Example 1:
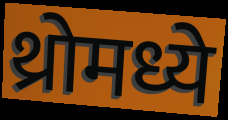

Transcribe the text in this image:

थ्रोमध्ये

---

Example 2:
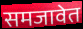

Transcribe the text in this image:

समजावेत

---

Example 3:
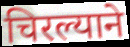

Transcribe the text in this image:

चिरल्याने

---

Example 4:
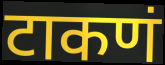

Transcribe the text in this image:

टाकणं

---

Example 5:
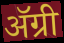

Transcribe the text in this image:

ॲग्री